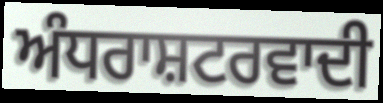
ਅੰਧਰਾਸ਼ਟਰਵਾਦੀ